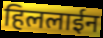
हिललाईन